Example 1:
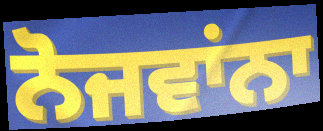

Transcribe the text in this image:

ਨੋਜਵਾਂਨਾ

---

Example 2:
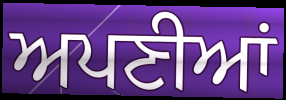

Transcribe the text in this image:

ਅਪਣੀਆਂ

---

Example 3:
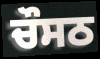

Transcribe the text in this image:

ਚੌਸਠ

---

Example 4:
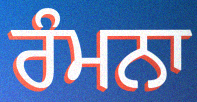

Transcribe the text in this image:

ਰੰਮਨਾ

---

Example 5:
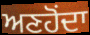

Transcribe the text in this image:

ਅਣਹੋਂਦਾ